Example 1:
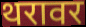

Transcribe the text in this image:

थरावर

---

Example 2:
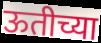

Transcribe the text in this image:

ऊतीच्या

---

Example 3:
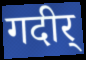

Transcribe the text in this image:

गदीर्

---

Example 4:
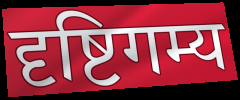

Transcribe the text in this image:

दृष्टिगम्य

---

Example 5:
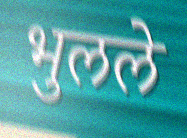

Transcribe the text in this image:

भुलले